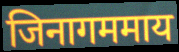
जिनागममाय